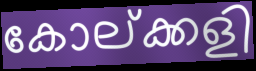
കോല്ക്കളി